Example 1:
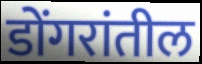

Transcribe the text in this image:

डोंगरांतील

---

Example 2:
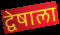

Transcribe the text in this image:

द्वेषाला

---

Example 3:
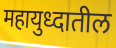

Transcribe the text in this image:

महायुध्दातील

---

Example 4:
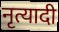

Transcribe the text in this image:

नृत्यादी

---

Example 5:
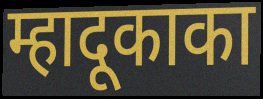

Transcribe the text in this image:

म्हादूकाका